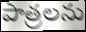
పాత్రలను